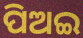
ପିଅଇ